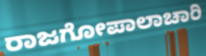
ರಾಜಗೋಪಾಲಾಚಾರಿ